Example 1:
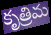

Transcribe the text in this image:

కృత్రిమ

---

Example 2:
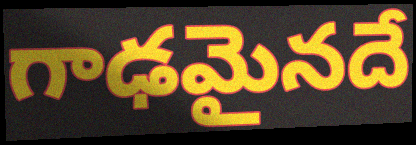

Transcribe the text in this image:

గాఢమైనదే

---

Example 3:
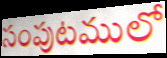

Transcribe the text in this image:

సంపుటములో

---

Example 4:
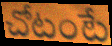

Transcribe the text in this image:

చోటంటే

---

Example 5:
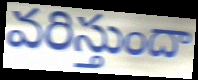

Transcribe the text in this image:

వరిస్తుందా